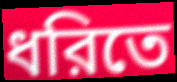
ধরিতে